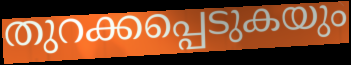
തുറക്കപ്പെടുകയും